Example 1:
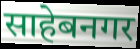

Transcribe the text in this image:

साहेबनगर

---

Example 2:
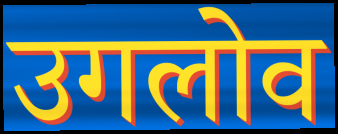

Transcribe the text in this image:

उगलोव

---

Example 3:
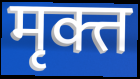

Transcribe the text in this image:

मृक्त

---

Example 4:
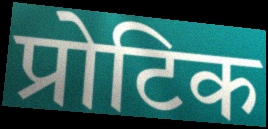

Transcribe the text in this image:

प्रोटिक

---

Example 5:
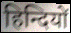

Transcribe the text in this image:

हिन्दियों